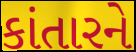
કાંતારને